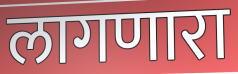
लागणारा